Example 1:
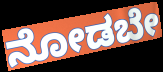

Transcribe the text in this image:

ನೋಡಬೇ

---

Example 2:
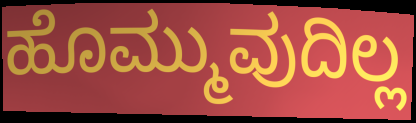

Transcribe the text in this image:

ಹೊಮ್ಮುವುದಿಲ್ಲ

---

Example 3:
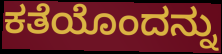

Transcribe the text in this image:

ಕತೆಯೊಂದನ್ನು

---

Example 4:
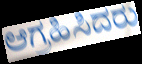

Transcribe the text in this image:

ಆಗ್ರಹಿಸಿದರು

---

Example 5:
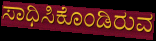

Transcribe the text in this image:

ಸಾಧಿಸಿಕೊಂಡಿರುವ